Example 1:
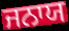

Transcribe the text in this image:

ਜਨਾਯ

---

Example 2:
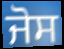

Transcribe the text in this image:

ਜੋਸ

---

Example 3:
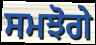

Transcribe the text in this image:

ਸਮਝੋਗੇ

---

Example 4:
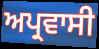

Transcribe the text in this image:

ਅਪ੍ਰਵਾਸੀ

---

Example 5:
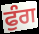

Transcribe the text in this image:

ਫੁੰਗ